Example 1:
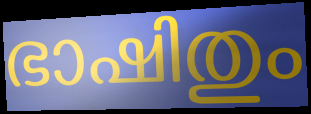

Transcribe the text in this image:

ഭാഷിതും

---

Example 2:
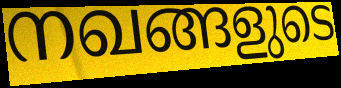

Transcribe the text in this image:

നഖങ്ങളുടെ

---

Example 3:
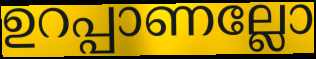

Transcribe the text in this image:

ഉറപ്പാണല്ലോ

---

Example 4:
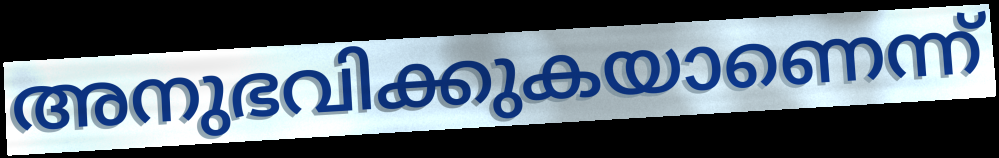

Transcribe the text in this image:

അനുഭവിക്കുകയാണെന്ന്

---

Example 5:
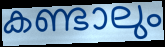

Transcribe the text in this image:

കണ്ടാലും